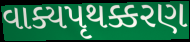
વાક્યપૃથક્કરણ